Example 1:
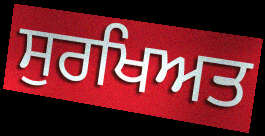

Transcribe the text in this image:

ਸੁਰਖਿਅਤ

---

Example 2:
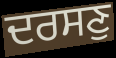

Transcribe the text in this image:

ਦਰਸਣੁ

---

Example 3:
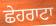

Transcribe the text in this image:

ਛੇਹਰਾਟਾ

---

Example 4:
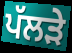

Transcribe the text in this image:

ਪੱਲੜੇ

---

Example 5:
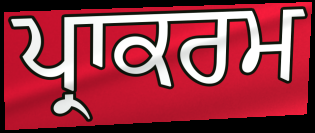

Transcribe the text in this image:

ਪ੍ਰਾਕਰਮ